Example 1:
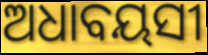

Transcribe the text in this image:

ଅଧାବୟସୀ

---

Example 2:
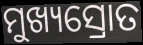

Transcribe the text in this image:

ମୁଖ୍ୟସ୍ରୋତ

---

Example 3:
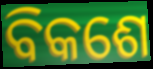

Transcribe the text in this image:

ବିକଶେ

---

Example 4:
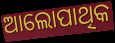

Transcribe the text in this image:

ଆଲୋପାଥିକ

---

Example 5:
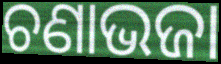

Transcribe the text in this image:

ଚଣାଭଜା